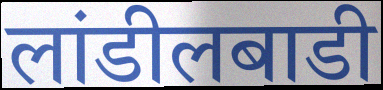
लांडीलबाडी